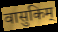
वासुकिम्